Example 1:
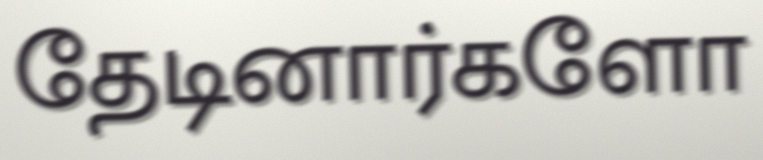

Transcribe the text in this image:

தேடினார்களோ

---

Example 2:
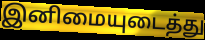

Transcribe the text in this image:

இனிமையுடைத்து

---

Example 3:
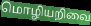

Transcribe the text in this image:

மொழியறிவை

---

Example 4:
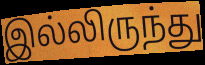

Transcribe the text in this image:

இல்லிருந்து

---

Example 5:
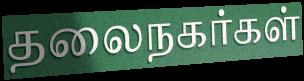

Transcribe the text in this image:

தலைநகர்கள்